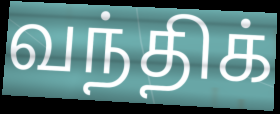
வந்திக்